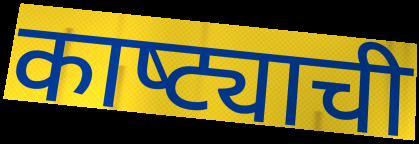
काष्ट्याची